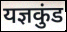
यज्ञकुंड